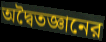
অদ্বৈতজ্ঞানের